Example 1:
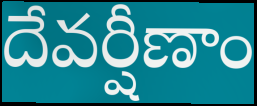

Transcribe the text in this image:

దేవర్షీణాం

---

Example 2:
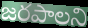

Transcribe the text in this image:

జరపాలని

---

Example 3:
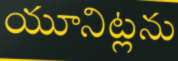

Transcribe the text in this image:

యూనిట్లను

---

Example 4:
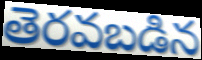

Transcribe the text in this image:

తెరవబడిన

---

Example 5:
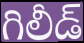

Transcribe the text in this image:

గిలీడ్